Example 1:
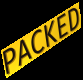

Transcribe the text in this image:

PACKED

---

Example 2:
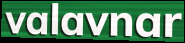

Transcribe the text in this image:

valavnar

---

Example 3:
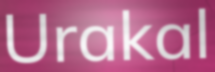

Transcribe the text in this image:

Urakal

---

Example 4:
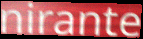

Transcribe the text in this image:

nirante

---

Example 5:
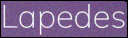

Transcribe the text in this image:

Lapedes